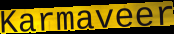
Karmaveer